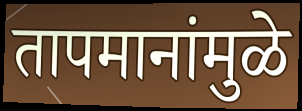
तापमानांमुळे